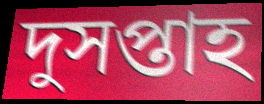
দুসপ্তাহ